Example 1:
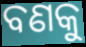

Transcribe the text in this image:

ବଣକୁ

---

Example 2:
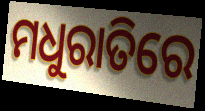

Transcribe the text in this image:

ମଧୁରାତିରେ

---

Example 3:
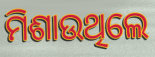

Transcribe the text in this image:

ମିଶାଉଥିଲେ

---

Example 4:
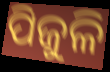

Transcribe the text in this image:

ପିଜୁଳି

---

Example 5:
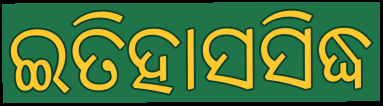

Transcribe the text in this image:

ଇତିହାସସିଦ୍ଧ